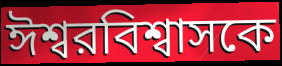
ঈশ্বরবিশ্বাসকে